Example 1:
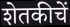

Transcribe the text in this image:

शेतकीचें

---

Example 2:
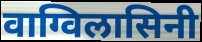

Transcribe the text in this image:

वाग्विलासिनी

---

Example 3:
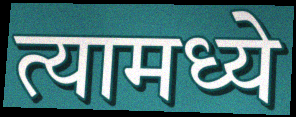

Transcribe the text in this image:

त्यामध्ये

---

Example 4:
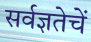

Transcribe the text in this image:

सर्वज्ञतेचें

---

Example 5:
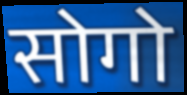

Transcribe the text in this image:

सोगो